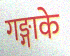
गङ्गाके